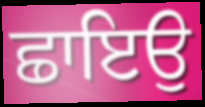
ਛਾਇਉ